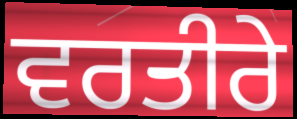
ਵਰਤੀਰੇ